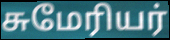
சுமேரியர்